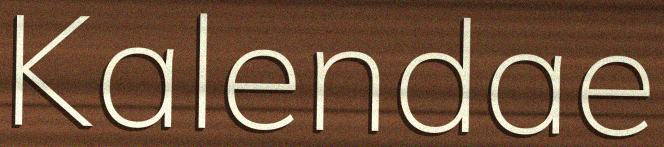
Kalendae